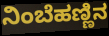
ನಿಂಬೆಹಣ್ಣಿನ